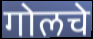
गोलचे